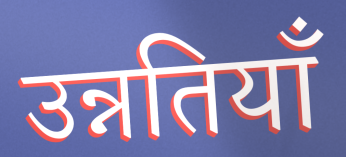
उन्नतियाँ